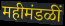
महीमंडळीं